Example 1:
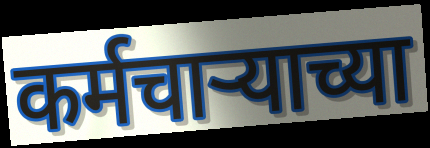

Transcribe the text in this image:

कर्मचाऱ्याच्या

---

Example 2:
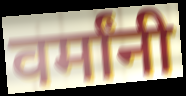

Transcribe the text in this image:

वर्मांनी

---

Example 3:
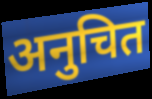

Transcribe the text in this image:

अनुचित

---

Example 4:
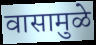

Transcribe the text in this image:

वासामुळे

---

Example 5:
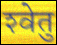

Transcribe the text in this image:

श्वेतु